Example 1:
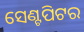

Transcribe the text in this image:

ସେଣ୍ଟପିଟର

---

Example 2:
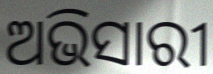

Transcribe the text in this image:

ଅଭିସାରୀ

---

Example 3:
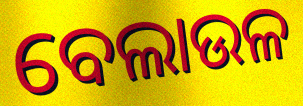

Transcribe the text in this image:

ବେଲାଉଳ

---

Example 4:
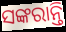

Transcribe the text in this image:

ସଙ୍କରାନ୍ତି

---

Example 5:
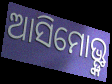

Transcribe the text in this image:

ଆସିମୋଭ୍ଙ୍କ